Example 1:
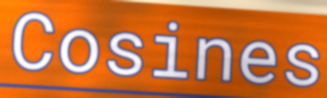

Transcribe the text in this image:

Cosines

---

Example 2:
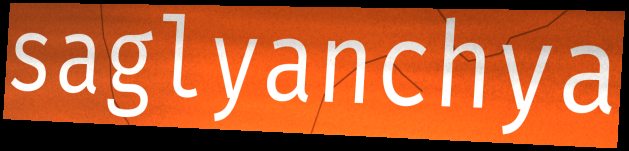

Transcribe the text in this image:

saglyanchya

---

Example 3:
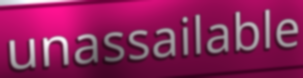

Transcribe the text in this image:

unassailable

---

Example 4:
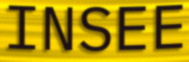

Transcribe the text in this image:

INSEE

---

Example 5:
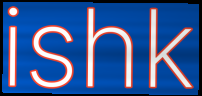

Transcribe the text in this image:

ishk